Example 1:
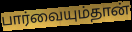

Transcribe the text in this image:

பார்வையும்தான்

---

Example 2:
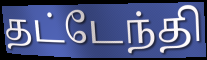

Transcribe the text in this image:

தட்டேந்தி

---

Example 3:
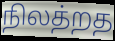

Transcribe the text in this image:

நிலத்றத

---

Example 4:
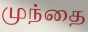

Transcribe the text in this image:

முந்தை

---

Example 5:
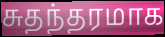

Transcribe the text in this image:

சுதந்தரமாக